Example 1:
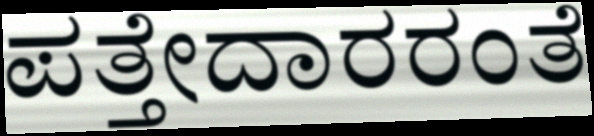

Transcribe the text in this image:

ಪತ್ತೇದಾರರಂತೆ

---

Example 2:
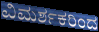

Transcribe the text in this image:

ವಿಮರ್ಶಕರಿಂದ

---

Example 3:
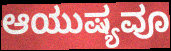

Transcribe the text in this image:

ಆಯುಷ್ಯವೂ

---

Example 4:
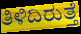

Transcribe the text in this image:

ತಿಳಿದಿರುತ್ತೆ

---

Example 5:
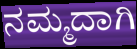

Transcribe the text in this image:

ನಮ್ಮದಾಗಿ